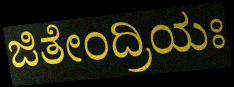
ಜಿತೇಂದ್ರಿಯಃ